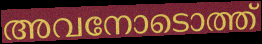
അവനോടൊത്ത്